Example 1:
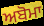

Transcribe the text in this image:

ਅਬੋਮਾ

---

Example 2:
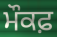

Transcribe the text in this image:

ਮੌਕਫ਼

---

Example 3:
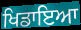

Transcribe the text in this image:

ਖਿਡਾਇਆ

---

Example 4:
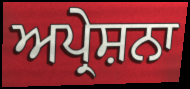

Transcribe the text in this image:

ਅਪ੍ਰੇਸ਼ਨਾ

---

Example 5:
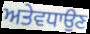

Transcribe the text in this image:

ਅਤੇਵਧਾਉਣ